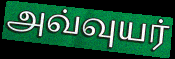
அவ்வுயர்